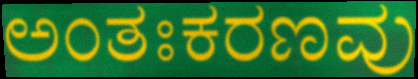
ಅಂತಃಕರಣವು